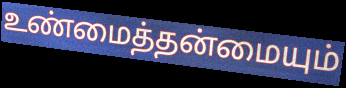
உண்மைத்தன்மையும்